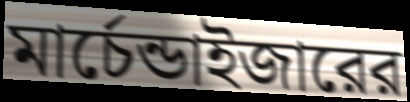
মার্চেন্ডাইজারের